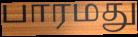
பாரமது